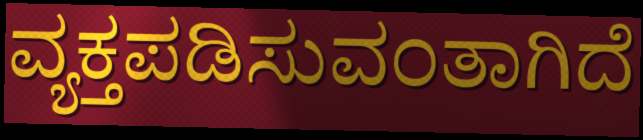
ವ್ಯಕ್ತಪಡಿಸುವಂತಾಗಿದೆ